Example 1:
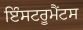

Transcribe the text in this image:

ਇੰਸਟਰੂਮੈਂਟਸ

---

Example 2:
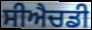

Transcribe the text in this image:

ਸੀਐਚਡੀ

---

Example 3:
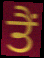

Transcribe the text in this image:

ਤੈਂ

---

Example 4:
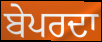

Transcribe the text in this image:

ਬੇਪਰਦਾ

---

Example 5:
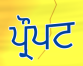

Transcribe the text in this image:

ਪ੍ਰੌਪਟ